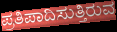
ಪ್ರತಿಪಾದಿಸುತ್ತಿರುವ